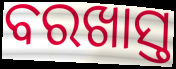
ବରଖାସ୍ତ